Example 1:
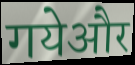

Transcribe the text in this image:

गयेऔर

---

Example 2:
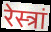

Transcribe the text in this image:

रेस्त्रां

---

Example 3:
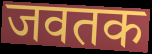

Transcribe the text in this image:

जवतक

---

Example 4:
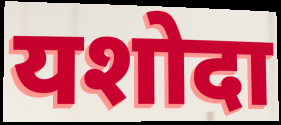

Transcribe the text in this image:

यशोदा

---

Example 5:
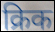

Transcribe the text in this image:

क्रिक